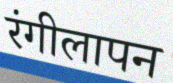
रंगीलापन